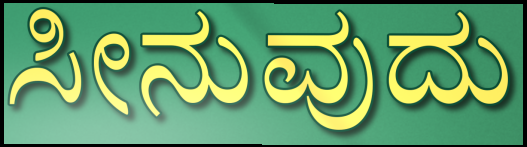
ಸೀನುವುದು